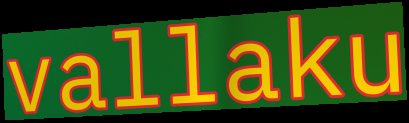
vallaku